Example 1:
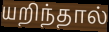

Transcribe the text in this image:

யறிந்தால்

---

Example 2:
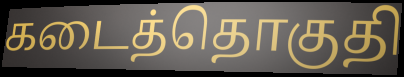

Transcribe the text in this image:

கடைத்தொகுதி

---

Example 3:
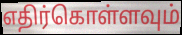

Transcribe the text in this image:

எதிர்கொள்ளவும்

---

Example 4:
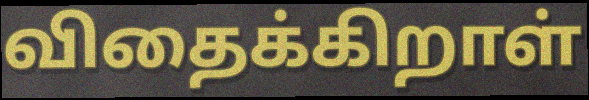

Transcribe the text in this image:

விதைக்கிறாள்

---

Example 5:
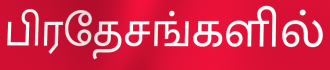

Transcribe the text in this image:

பிரதேசங்களில்